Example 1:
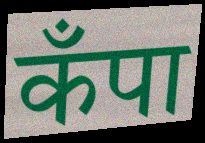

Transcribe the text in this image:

कँपा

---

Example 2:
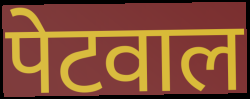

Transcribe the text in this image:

पेटवाल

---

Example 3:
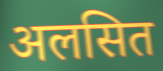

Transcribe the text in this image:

अलसित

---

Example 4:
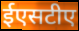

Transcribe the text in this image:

ईएसटीए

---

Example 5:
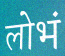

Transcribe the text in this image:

लोभं